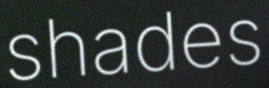
shades